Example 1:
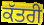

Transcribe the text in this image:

ਕੱਤਰੀ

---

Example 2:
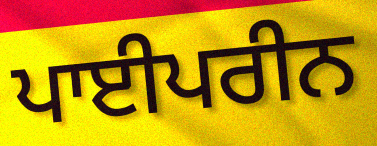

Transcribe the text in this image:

ਪਾਈਪਰੀਨ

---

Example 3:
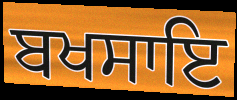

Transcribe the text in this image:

ਬਖਸਾਇ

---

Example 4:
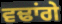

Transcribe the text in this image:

ਵਢਾਂਗੇ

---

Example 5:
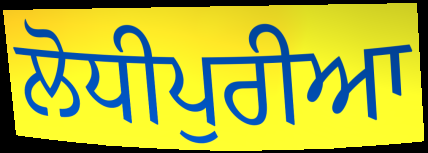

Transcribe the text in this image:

ਲੋਧੀਪੁਰੀਆ